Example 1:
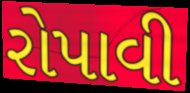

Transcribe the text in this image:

રોપાવી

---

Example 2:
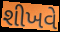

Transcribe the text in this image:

શીખવે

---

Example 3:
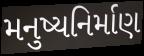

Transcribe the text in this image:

મનુષ્યનિર્માણ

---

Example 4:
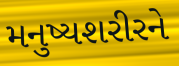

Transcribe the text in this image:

મનુષ્યશરીરને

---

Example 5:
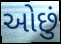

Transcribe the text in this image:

ઓછું